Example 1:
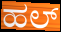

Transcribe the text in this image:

ಹಲ್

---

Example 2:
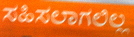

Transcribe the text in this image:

ಸಹಿಸಲಾಗಲಿಲ್ಲ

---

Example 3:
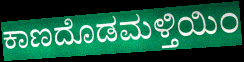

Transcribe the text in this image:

ಕಾಣದೊಡಮಳ್ತಿಯಿಂ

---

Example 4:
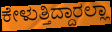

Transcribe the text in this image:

ಕೇಳುತ್ತಿದ್ದಾರಲ್ಲಾ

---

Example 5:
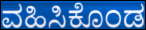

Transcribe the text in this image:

ವಹಿಸಿಕೊಂಡ